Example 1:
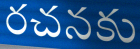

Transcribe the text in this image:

రచనకు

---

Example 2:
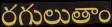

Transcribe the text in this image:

రగులుతాం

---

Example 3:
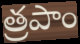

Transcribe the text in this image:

త్రపాం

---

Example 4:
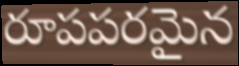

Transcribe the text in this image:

రూపపరమైన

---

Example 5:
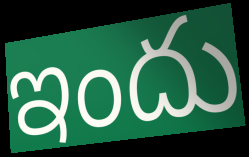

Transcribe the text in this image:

ఇందు